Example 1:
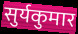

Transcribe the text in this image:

सुर्यकुमार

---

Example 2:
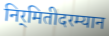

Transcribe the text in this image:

निर्मितीदरम्यान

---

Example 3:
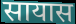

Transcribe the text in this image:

सायास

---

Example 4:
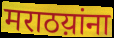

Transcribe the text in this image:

मराठय़ांना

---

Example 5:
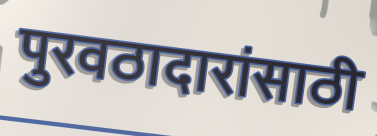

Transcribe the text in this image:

पुरवठादारांसाठी